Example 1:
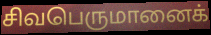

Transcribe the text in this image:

சிவபெருமானைக்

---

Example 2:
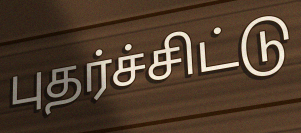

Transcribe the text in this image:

புதர்ச்சிட்டு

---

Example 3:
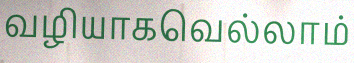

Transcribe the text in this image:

வழியாகவெல்லாம்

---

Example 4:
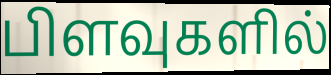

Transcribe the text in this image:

பிளவுகளில்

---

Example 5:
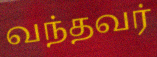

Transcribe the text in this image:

வந்தவர்